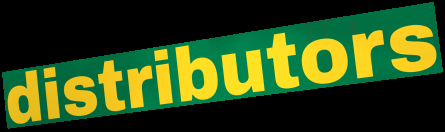
distributors